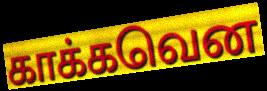
காக்கவென